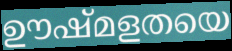
ഊഷ്മളതയെ